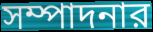
সম্পাদনার